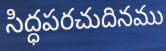
సిద్ధపరచుదినము